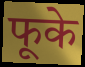
फूके